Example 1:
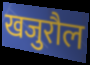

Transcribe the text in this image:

खजुरौल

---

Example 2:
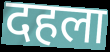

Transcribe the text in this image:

दहला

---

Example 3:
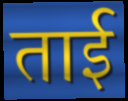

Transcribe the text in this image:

ताई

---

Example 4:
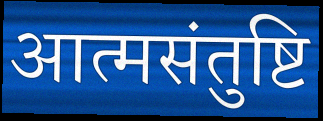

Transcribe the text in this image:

आत्मसंतुष्टि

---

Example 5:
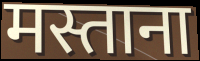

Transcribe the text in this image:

मस्ताना